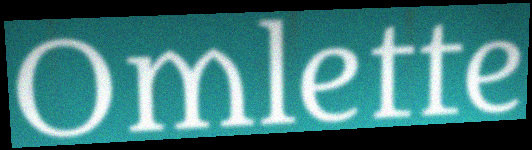
Omlette